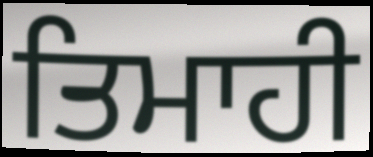
ਤਿਮਾਹੀ